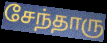
சேந்தாரு